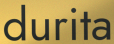
durita